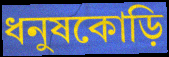
ধনুষকোড়ি